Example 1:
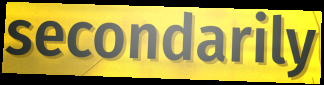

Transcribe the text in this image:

secondarily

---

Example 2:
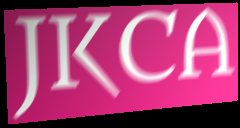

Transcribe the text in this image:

JKCA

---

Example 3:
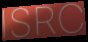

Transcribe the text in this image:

ISRC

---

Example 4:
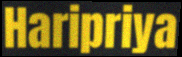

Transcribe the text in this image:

Haripriya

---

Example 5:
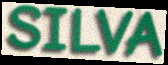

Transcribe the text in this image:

SILVA